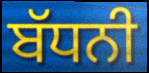
ਬੱਧਨੀ